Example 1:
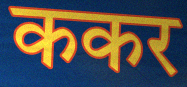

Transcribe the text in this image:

ककर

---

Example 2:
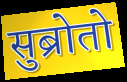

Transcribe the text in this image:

सुब्रोतो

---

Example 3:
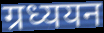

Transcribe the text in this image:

ग्रध्ययन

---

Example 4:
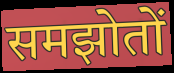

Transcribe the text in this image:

समझोतों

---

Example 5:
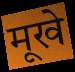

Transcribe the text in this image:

मूखे